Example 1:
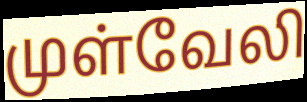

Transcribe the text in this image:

முள்வேலி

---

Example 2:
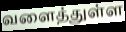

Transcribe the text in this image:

வளைத்துள்ள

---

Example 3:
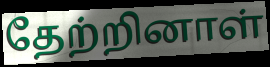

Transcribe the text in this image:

தேற்றினாள்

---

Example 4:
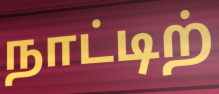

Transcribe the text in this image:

நாட்டிற்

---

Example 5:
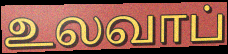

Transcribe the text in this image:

உலவாப்